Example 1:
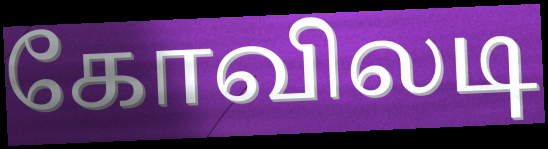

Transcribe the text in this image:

கோவிலடி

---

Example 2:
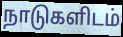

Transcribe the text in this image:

நாடுகளிடம்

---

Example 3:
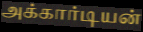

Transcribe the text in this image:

அக்கார்டியன்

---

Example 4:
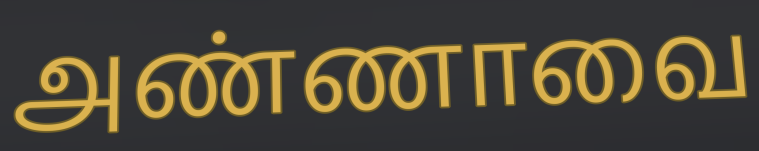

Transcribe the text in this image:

அண்ணாவை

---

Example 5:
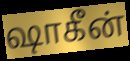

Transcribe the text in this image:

ஷாகீன்